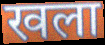
खला